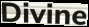
Divine